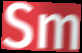
Sm